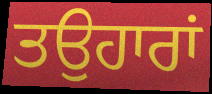
ਤਉਹਾਰਾਂ